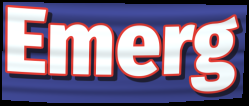
Emerg